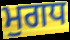
ਮੁਗਧ